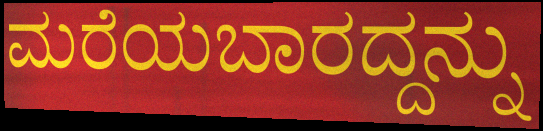
ಮರೆಯಬಾರದ್ದನ್ನು